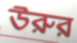
উরুর